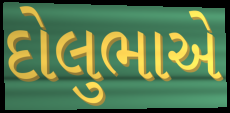
દોલુભાએ